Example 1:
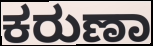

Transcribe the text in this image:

ಕರುಣಾ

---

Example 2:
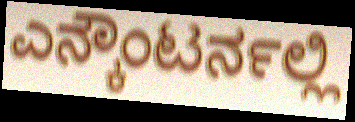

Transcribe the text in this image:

ಎನ್ಕೌಂಟರ್ನಲ್ಲಿ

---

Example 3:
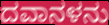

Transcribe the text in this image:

ದವಾನಳನು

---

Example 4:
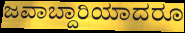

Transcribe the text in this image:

ಜವಾಬ್ದಾರಿಯಾದರೂ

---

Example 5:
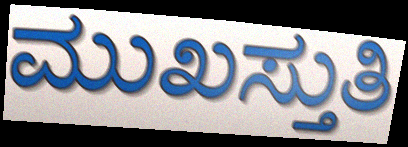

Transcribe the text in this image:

ಮುಖಸ್ತುತಿ